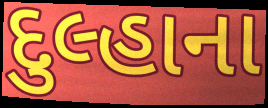
દુલ્હાના